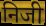
निजी